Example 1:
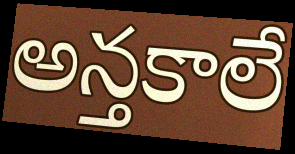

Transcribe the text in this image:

అన్తకాలే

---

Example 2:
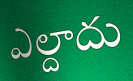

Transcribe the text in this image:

ఎల్దాదు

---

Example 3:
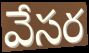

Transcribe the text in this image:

వేసర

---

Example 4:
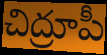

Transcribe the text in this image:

చిద్రూపీ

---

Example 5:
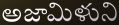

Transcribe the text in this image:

అజామిళుని